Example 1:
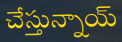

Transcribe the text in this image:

చేస్తున్నాయ్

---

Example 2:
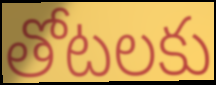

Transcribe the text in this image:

తోటలకు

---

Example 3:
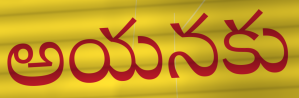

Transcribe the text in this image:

అయనకు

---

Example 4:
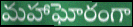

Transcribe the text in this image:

మహాఘోరంగా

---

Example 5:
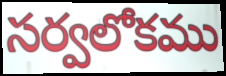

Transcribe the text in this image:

సర్వలోకము